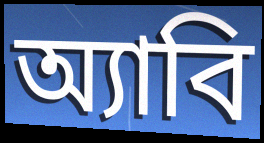
অ্যাবি